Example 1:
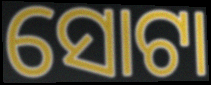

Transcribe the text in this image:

ସୋଟା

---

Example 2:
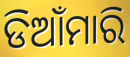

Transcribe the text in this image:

ଡିଆଁମାରି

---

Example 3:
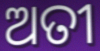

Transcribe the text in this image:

ଅତୀ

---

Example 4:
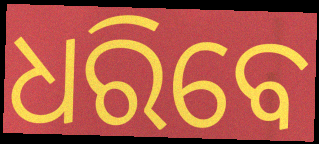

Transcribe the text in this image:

ଧରିବେ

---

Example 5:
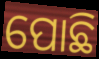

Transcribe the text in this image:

ପୋଛି